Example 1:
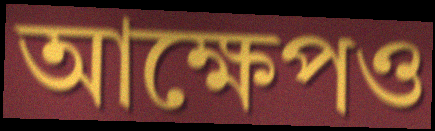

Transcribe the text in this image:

আক্ষেপও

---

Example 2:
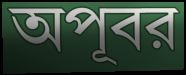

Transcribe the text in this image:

অপূবর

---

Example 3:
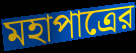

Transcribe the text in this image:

মহাপাত্রের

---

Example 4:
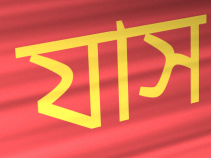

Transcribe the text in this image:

যাস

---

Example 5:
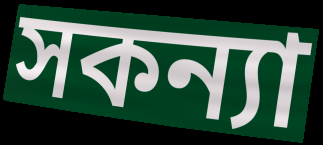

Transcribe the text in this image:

সকন্যা